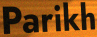
Parikh